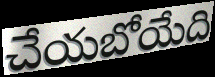
చేయబోయేది